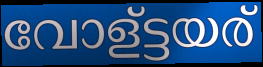
വോള്ട്ടയര്